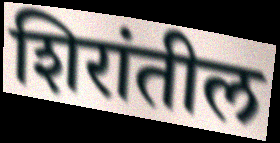
शिरांतील